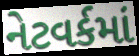
નેટવર્કમાં